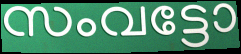
സംവട്ടോ